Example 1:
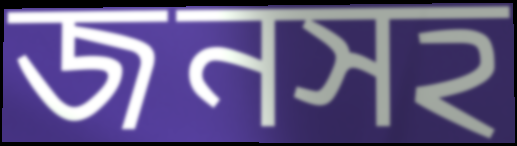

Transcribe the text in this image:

জনসহ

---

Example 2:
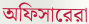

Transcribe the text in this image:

অফিসারেরা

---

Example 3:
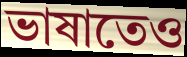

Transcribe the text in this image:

ভাষাতেও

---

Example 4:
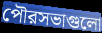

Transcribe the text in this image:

পৌরসভাগুলো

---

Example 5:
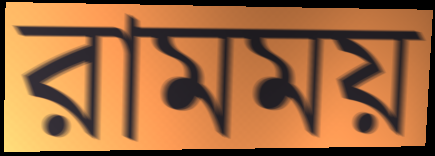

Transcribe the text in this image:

রামময়